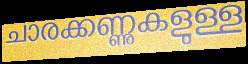
ചാരക്കണ്ണുകളുള്ള